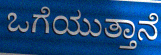
ಒಗೆಯುತ್ತಾನೆ